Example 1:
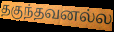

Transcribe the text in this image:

தகுந்தவனல்ல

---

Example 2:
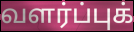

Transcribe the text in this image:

வளர்ப்புக்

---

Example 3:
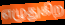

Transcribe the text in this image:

எழுதுகிற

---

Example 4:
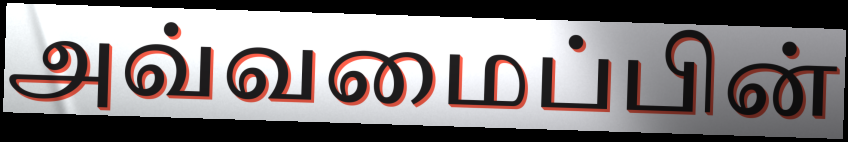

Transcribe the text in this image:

அவ்வமைப்பின்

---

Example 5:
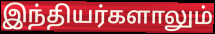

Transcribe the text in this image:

இந்தியர்களாலும்